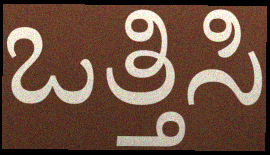
ಒತ್ತಿಸಿ